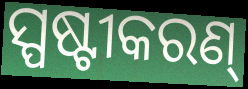
ସ୍ପଷ୍ଟୀକରଣ୍